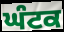
ਘੰਟਕ